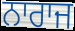
ਨਾਰਾਜ